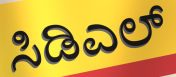
ಸಿಡಿಎಲ್